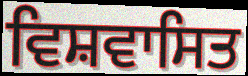
ਵਿਸ਼ਵਾਸਿਤ